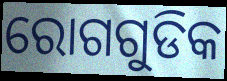
ରୋଗଗୁଡିକ